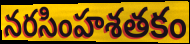
నరసింహశతకం